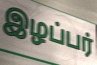
இழப்பர்